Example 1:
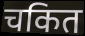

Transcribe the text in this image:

चकित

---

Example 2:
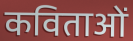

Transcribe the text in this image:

कविताओं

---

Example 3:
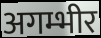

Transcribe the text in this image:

अगम्भीर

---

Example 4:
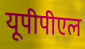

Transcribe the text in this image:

यूपीपीएल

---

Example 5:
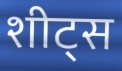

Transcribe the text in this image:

शीट्स